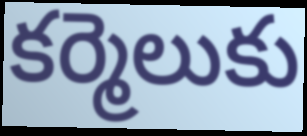
కర్మెలుకు